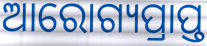
ଆରୋଗ୍ୟପ୍ରାପ୍ତ